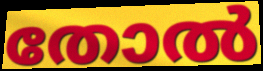
തോൽ